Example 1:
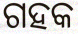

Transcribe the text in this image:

ଗହକ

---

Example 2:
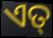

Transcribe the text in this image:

ଏତ୍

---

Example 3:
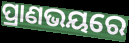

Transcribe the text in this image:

ପ୍ରାଣଭୟରେ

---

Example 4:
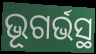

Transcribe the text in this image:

ଭୂଗର୍ଭସ୍ଥ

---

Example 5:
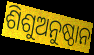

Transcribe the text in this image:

ଶିଶୁଅନୁଷ୍ଠାନ